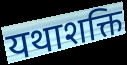
यथाशक्ति